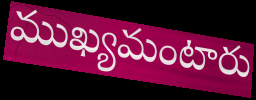
ముఖ్యమంటారు